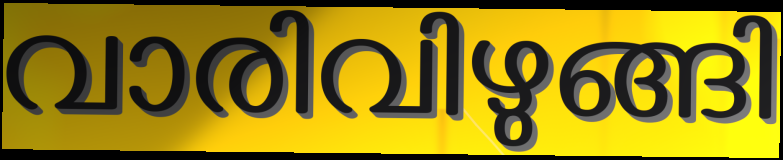
വാരിവിഴുങ്ങി